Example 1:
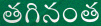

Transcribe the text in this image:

తగినంత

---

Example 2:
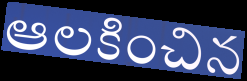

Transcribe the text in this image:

ఆలకించిన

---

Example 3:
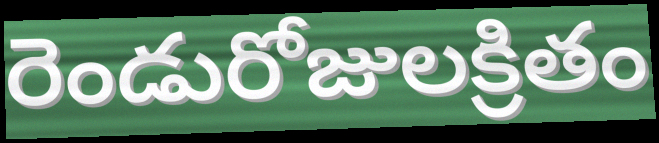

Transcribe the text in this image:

రెండురోజులక్రితం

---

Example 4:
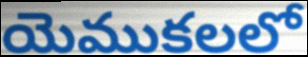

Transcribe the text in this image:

యెముకలలో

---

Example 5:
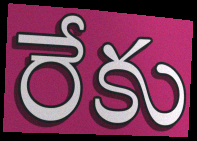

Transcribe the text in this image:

రేకు